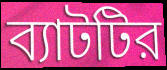
ব্যাটটির